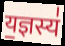
य॒ज्ञस्य॑